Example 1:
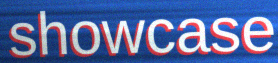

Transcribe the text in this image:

showcase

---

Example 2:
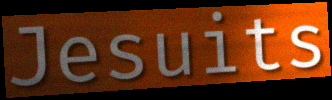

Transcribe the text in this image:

Jesuits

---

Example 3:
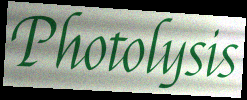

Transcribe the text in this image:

Photolysis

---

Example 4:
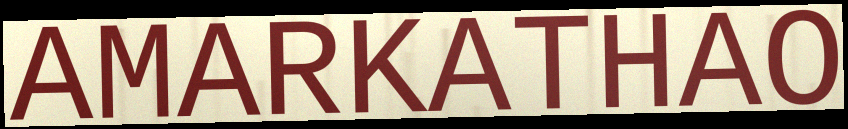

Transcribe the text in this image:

AMARKATHAO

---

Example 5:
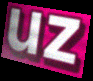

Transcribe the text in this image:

uz